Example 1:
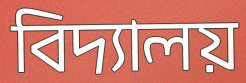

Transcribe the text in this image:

বিদ্যালয়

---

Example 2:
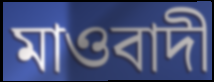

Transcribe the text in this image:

মাওবাদী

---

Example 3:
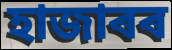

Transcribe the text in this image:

হাজাৰৰ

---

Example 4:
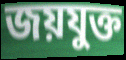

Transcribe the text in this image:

জয়যুক্ত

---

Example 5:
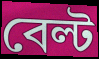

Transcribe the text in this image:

বেল্ট